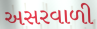
અસરવાળી